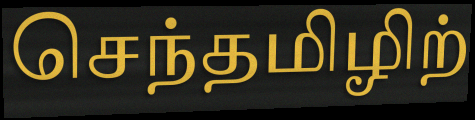
செந்தமிழிற்